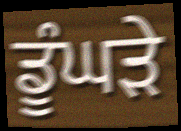
ਡੂੰਘੜੇ